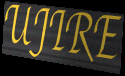
UJIRE